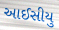
આઈસીયુ